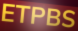
ETPBS